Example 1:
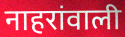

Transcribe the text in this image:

नाहरांवाली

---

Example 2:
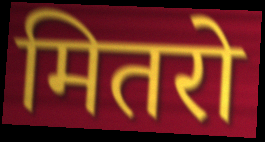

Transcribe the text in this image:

मितरो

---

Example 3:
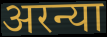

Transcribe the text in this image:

अरन्या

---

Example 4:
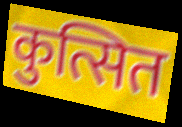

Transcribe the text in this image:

कुत्सित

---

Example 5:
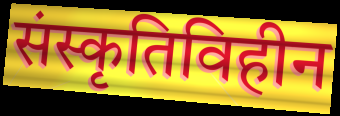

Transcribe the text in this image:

संस्कृतिविहीन